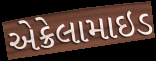
એક્રેલામાઇડ